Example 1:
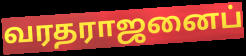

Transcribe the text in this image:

வரதராஜனைப்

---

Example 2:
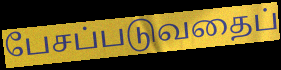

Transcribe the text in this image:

பேசப்படுவதைப்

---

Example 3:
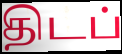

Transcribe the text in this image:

திடப்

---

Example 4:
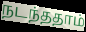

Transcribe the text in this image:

நடந்ததாம்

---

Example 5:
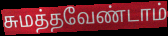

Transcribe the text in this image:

சுமத்தவேண்டாம்